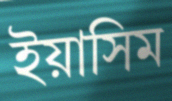
ইয়াসিম